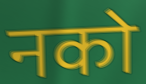
नको